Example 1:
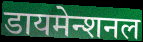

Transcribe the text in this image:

डायमेन्शनल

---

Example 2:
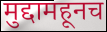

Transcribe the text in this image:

मुद्दामहूनच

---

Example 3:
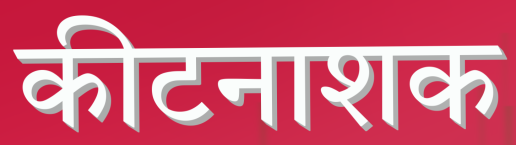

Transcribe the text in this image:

कीटनाशक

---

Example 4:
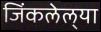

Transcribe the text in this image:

जिंकलेल्या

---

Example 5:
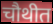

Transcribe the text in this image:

चौथीत